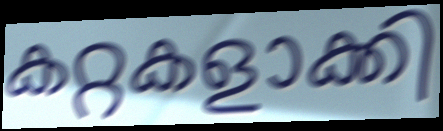
കറ്റകളാക്കി